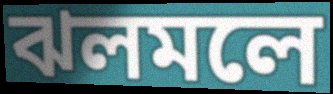
ঝলমলে